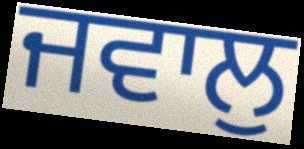
ਜਵਾਲੁ